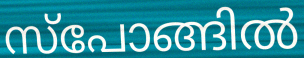
സ്പോങ്ങിൽ